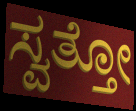
ಸ್ವತ್ತೋ